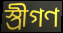
স্ত্রীগণ